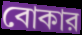
বোকার